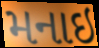
મનાઇ